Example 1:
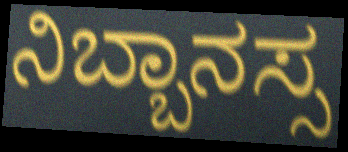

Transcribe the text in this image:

ನಿಬ್ಬಾನಸ್ಸ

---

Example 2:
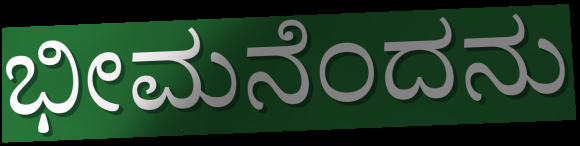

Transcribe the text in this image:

ಭೀಮನೆಂದನು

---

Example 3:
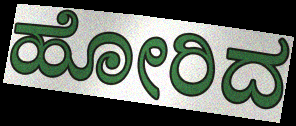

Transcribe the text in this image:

ಹೋರಿದ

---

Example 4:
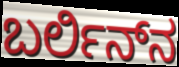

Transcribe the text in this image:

ಬರ್ಲಿನ್‍ನ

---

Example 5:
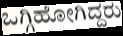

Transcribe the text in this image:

ಒಗ್ಗಿಹೋಗಿದ್ದರು